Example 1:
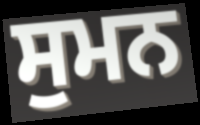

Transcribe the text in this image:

ਸੁਮਨ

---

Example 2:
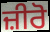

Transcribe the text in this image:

ਜ਼ੀਰੋ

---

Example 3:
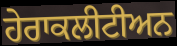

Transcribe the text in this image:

ਹੇਰਾਕਲੀਟੀਅਨ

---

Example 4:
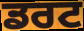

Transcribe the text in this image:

ਡਰਟ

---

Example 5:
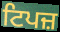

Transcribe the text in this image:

ਟਿਪਜ਼